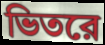
ভিতরে